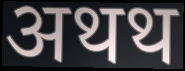
अथथ